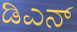
ಡಿಎನ್